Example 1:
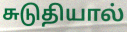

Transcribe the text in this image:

சுடுதியால்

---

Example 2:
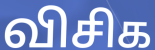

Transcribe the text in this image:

விசிக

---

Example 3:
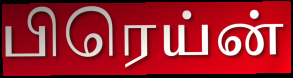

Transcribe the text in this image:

பிரெய்ன்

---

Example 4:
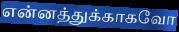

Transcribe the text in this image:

என்னத்துக்காகவோ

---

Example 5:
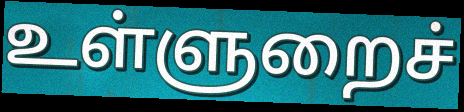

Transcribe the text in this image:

உள்ளுறைச்